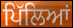
ਪਿੱਲਿਆਂ